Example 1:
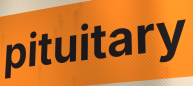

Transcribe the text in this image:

pituitary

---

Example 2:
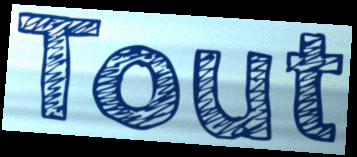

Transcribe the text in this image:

Tout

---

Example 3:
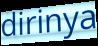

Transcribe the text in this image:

dirinya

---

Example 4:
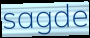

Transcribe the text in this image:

sagde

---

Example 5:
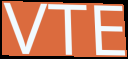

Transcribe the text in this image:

VTE